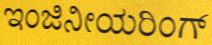
ಇಂಜಿನೀಯರಿಂಗ್